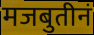
मजबुतीनं